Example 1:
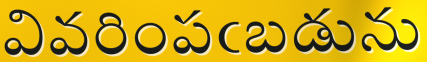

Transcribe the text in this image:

వివరింపఁబడును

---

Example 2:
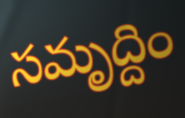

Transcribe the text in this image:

సమృద్దిం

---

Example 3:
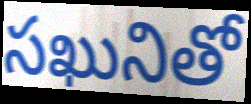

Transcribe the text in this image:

సఖునితో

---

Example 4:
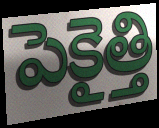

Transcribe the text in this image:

పెకైత్తి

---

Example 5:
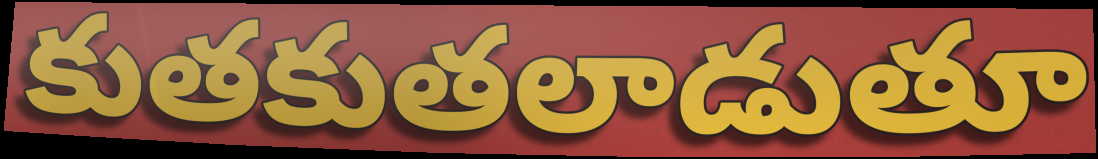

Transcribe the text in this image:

కుతకుతలాడుతూ